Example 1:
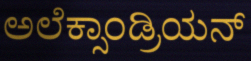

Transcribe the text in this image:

ಅಲೆಕ್ಸಾಂಡ್ರಿಯನ್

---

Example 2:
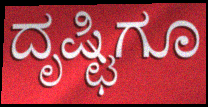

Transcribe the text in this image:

ದೃಷ್ಟಿಗೂ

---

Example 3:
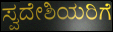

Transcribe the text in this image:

ಸ್ವದೇಶಿಯರಿಗೆ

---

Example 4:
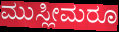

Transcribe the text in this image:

ಮುಸ್ಲೀಮರೂ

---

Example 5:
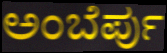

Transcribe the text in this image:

ಅಂಬೆರ್ಪು